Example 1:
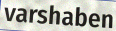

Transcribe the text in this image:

varshaben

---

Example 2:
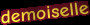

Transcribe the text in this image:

demoiselle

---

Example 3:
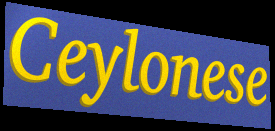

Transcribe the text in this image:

Ceylonese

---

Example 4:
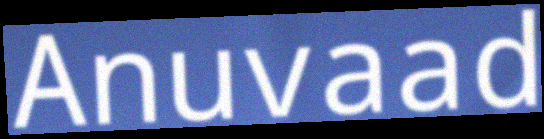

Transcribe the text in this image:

Anuvaad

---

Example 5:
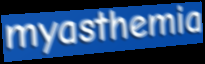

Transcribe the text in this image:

myasthemia